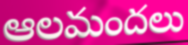
ఆలమందలు